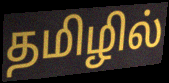
தமிழில்